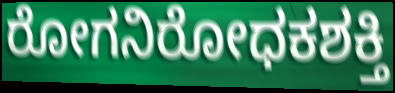
ರೋಗನಿರೋಧಕಶಕ್ತಿ